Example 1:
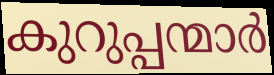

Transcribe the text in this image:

കുറുപ്പന്മാർ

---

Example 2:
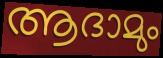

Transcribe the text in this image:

ആദാമും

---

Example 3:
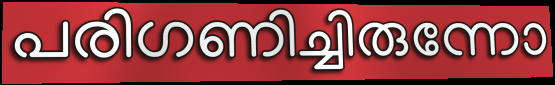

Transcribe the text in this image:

പരിഗണിച്ചിരുന്നോ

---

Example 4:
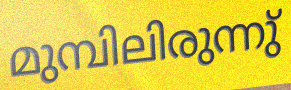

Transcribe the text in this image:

മുമ്പിലിരുന്നു്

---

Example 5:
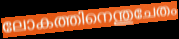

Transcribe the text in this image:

ലോകത്തിനെന്തുചേതം